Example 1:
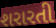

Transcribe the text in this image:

શરારતી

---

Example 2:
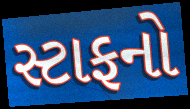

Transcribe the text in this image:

સ્ટાફનો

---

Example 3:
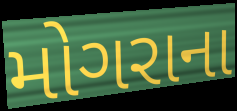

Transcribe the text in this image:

મોગરાના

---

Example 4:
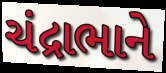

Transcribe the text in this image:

ચંદ્રાભાને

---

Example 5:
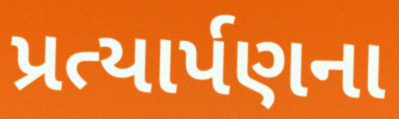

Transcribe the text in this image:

પ્રત્યાર્પણના